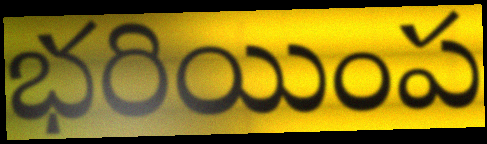
భరియింప